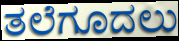
ತಲೆಗೂದಲು